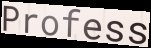
Profess